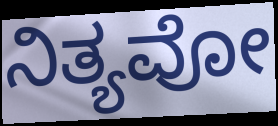
ನಿತ್ಯವೋ